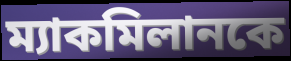
ম্যাকমিলানকে